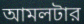
আমলটার